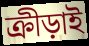
ক্রীড়াই